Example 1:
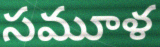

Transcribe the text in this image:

సమూళ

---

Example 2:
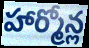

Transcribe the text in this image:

హార్మోన్ల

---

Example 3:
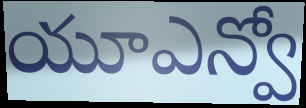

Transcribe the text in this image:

యూఎన్వో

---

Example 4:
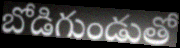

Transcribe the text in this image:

బోడిగుండుతో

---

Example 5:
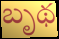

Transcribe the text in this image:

బృథ